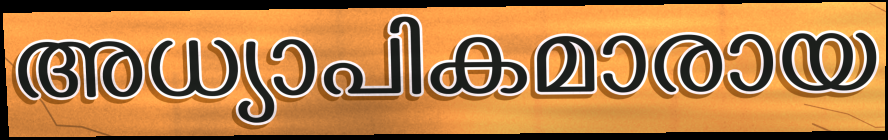
അധ്യാപികമാരായ